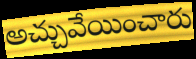
అచ్చువేయించారు